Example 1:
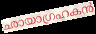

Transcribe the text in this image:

ഛായാഗ്രഹകൻ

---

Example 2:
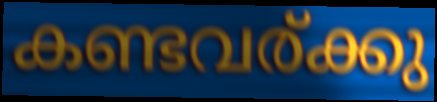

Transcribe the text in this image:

കണ്ടവര്ക്കു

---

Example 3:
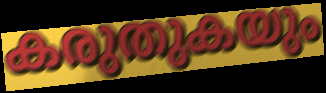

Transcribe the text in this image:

കരുതുകയും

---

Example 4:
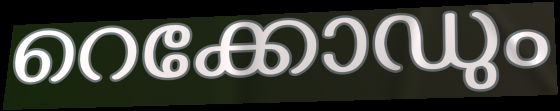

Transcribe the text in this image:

റെക്കോഡും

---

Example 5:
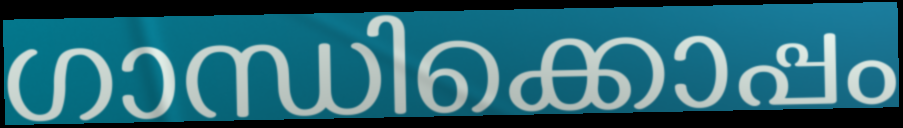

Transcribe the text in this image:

ഗാന്ധിക്കൊപ്പം